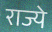
राज्ये